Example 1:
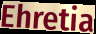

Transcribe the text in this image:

Ehretia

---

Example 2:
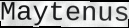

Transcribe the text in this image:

Maytenus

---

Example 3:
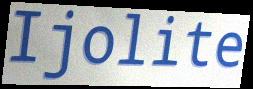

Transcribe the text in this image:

Ijolite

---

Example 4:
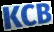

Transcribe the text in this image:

KCB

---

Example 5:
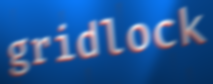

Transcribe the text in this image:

gridlock